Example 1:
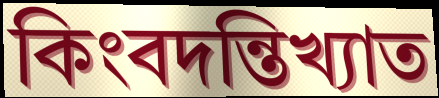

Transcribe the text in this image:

কিংবদন্তিখ্যাত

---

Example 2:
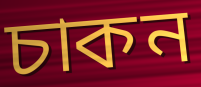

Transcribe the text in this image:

চাকন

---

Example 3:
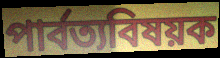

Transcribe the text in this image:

পার্বত্যবিষয়ক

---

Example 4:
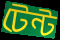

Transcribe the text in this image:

টেন্ট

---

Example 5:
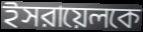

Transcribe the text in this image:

ইসরায়েলকে